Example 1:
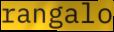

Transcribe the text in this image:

rangalo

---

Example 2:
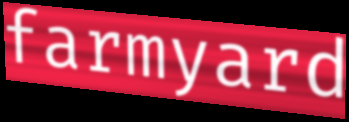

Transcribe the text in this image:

farmyard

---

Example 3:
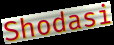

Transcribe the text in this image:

Shodasi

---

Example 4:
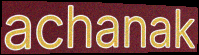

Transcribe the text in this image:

achanak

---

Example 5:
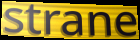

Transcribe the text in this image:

strane